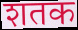
शतक